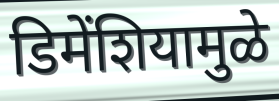
डिमेंशियामुळे